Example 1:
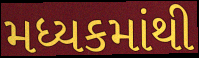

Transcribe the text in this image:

મધ્યકમાંથી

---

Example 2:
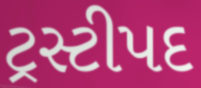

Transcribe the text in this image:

ટ્રસ્ટીપદ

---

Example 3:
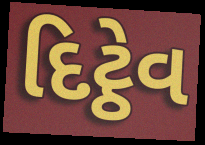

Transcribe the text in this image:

દિટ્ઠેવ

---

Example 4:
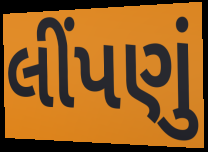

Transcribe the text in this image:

લીંપણું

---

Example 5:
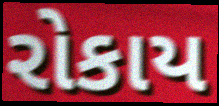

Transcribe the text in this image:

રોકાય